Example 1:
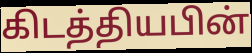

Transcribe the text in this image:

கிடத்தியபின்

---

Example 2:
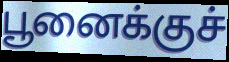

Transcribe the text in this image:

பூனைக்குச்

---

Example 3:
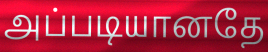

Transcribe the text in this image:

அப்படியானதே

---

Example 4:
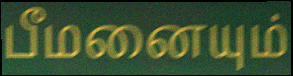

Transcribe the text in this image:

பீமனையும்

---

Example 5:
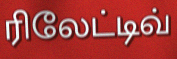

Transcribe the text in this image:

ரிலேட்டிவ்